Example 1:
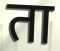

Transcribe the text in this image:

ता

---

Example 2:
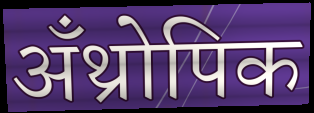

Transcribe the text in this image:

अँथ्रोपिक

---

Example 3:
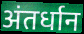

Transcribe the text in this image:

अंतर्धान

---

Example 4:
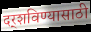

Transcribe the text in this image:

दर्शविण्यासाठी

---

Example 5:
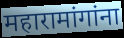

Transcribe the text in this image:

महारामांगांना